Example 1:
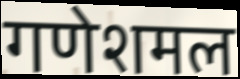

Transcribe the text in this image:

गणेशमल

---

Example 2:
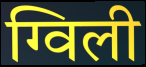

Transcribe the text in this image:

ग्विली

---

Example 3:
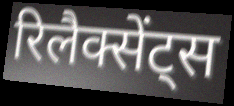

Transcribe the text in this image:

रिलैक्सेंट्स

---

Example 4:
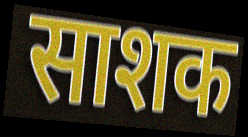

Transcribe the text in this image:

साशक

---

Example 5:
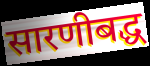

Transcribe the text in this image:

सारणीबद्ध